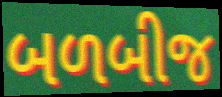
બળબીજ